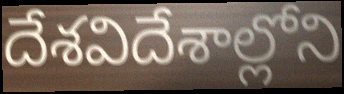
దేశవిదేశాల్లోని